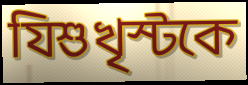
যিশুখৃস্টকে